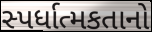
સ્પર્ધાત્મકતાનો